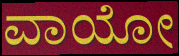
ವಾಯೋ